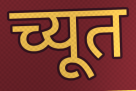
च्यूत